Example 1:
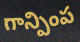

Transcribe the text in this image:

గాన్పింప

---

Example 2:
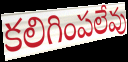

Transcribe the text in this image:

కలిగింపలేవు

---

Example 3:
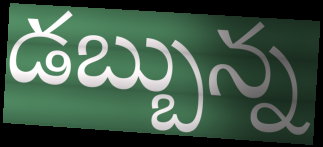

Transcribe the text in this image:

డబ్బున్న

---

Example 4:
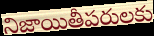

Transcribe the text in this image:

నిజాయితీపరులకు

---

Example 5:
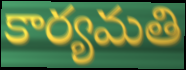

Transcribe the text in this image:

కార్యమతి